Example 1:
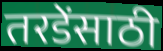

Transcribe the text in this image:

तरडेंसाठी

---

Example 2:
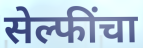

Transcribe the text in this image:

सेल्फींचा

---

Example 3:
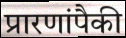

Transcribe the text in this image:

प्रारणांपैकी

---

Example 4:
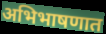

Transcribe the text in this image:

अभिभाषणात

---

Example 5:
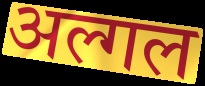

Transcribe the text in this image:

अल्गल